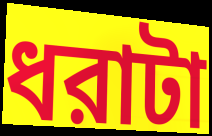
ধরাটা